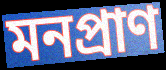
মনপ্রাণ